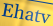
Ehatv